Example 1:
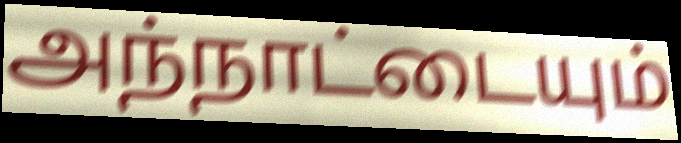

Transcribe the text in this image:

அந்நாட்டையும்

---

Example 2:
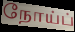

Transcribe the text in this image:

நோய்ப்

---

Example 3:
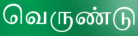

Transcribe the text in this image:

வெருண்டு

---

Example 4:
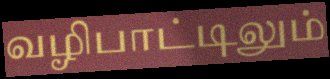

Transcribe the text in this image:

வழிபாட்டிலும்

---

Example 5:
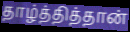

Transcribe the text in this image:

தாழ்த்தித்தான்